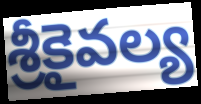
శ్రీకైవల్య